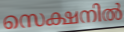
സെക്ഷനിൽ